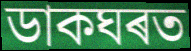
ডাকঘৰত